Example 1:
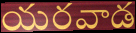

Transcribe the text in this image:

యరవాడ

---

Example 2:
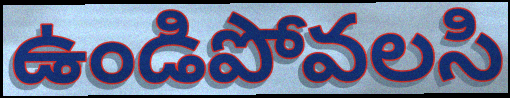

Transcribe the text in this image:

ఉండిపోవలసి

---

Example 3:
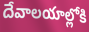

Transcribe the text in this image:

దేవాలయాల్లోకి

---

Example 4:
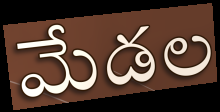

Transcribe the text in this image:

మేడల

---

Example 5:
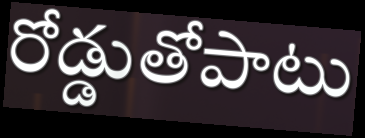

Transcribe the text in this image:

రోడ్డుతోపాటు